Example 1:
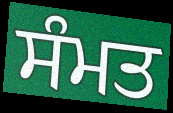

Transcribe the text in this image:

ਸੰਮਤ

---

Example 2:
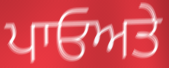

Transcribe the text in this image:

ਪਾਓਅਤੇ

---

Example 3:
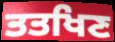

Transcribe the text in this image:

ਤਤਖਿਣ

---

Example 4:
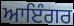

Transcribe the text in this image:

ਆਇੰਗਰ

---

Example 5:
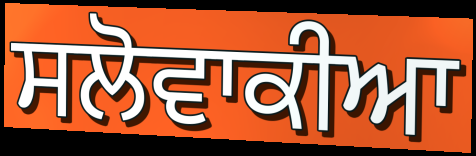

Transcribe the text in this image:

ਸਲੋਵਾਕੀਆ